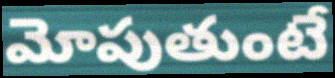
మోపుతుంటే